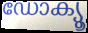
ഡോക്യൂ